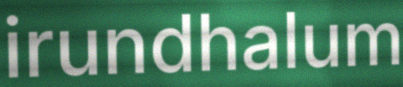
irundhalum